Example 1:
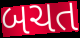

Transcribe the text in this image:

બચત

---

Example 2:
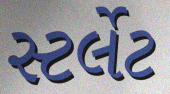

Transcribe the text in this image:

સ્ટર્લેટ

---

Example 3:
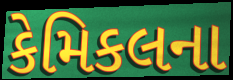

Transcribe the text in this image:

કેમિકલના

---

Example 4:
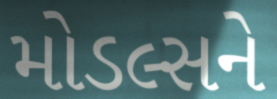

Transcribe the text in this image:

મોડલ્સને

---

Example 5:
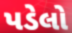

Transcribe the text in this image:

પડેલો